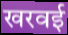
खरवई